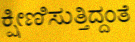
ಕ್ಷೀಣಿಸುತ್ತಿದ್ದಂತೆ